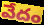
వేదం